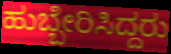
ಹುಬ್ಬೇರಿಸಿದ್ದರು